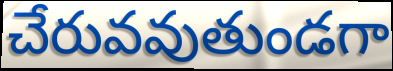
చేరువవుతుండగా